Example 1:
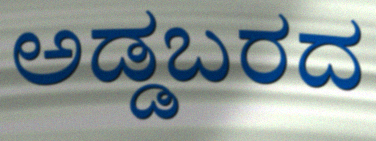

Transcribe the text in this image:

ಅಡ್ಡಬರದ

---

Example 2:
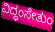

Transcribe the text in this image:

ವಿದ್ಧಂಸೇತುಂ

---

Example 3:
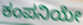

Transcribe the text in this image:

ಕಂಪನಿಯೇ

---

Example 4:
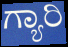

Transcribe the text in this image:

ಗ್ಯಾರಿ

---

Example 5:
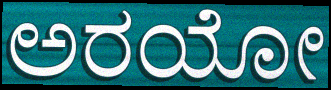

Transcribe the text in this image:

ಅರಯೋ